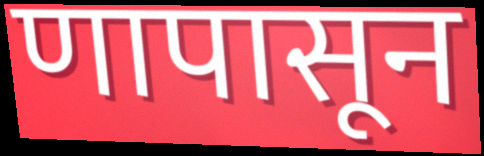
णापासून